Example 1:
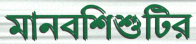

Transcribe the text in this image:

মানবশিশুটির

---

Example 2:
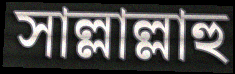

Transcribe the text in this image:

সাল্লাল্লাহু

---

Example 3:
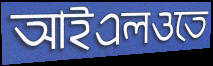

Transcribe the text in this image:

আইএলওতে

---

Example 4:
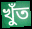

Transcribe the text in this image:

খুঁত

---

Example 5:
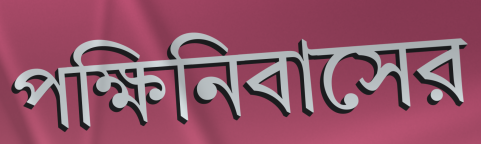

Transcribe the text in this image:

পক্ষিনিবাসের